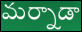
మర్నాడా